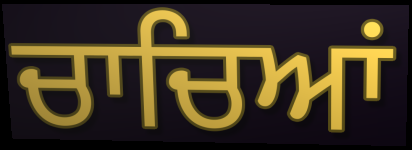
ਚਾਚਿਆਂ